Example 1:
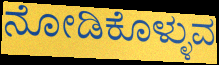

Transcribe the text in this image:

ನೋಡಿಕೊಳ್ಳುವ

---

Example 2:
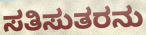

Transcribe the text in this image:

ಸತಿಸುತರನು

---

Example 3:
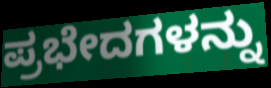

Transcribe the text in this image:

ಪ್ರಭೇದಗಳನ್ನು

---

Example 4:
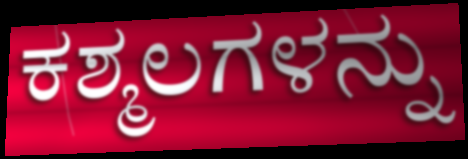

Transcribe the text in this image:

ಕಶ್ಮಲಗಳನ್ನು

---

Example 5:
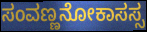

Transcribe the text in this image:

ಸಂವಣ್ಣನೋಕಾಸಸ್ಸ